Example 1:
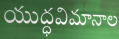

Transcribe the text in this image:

యుద్ధవిమానాల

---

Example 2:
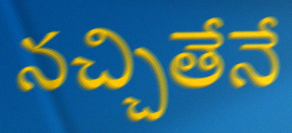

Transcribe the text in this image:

నచ్చితేనే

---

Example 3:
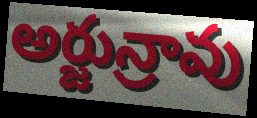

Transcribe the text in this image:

అర్జున్రావు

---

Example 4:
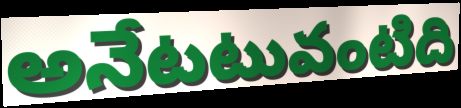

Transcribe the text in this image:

అనేటటువంటిది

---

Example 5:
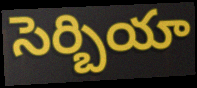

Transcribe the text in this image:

సెర్బియా